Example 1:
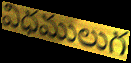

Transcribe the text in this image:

విధములుగ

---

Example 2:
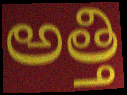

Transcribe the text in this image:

అత్తి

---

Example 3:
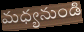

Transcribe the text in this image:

మధ్యనుండి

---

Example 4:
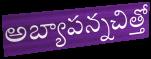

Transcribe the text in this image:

అబ్యాపన్నచిత్తో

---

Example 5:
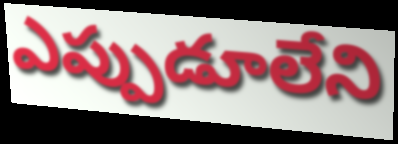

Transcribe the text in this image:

ఎప్పుడూలేని